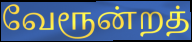
வேரூன்றத்